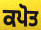
ਕਪੋਤ